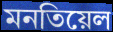
মনতিয়েল